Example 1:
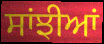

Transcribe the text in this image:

ਸਾਂਝੀਆਂ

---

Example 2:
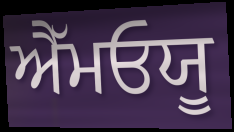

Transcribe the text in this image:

ਐੱਮਓਯੂ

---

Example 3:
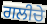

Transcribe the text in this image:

ਗਲੀਚੇ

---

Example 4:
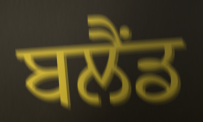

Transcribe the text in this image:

ਬਲੈਂਡ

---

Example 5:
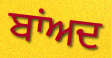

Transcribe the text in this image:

ਬਾਂਅਦ